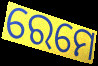
ରେମେ